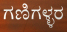
ಗಣಿಗಳ್ಳರ